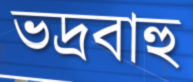
ভদ্রবাহু